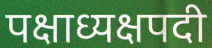
पक्षाध्यक्षपदी